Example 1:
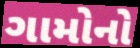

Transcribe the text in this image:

ગામોનો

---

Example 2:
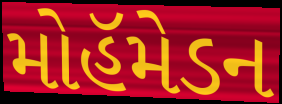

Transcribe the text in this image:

મોહૅમેડન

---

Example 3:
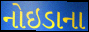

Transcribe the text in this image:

નોઇડાના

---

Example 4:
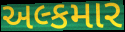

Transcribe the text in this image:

અલ્કમાર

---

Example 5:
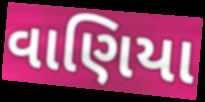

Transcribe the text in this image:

વાણિયા